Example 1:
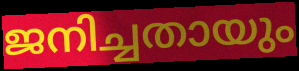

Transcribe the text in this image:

ജനിച്ചതായും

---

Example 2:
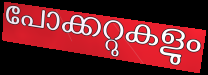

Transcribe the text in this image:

പോക്കറ്റുകളും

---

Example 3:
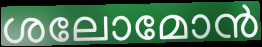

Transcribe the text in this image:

ശലോമോൻ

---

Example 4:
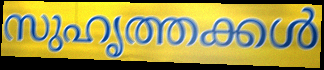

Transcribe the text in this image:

സുഹൃത്തക്കൾ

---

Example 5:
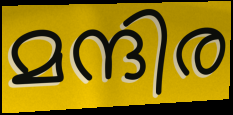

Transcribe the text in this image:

മന്ദിര